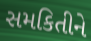
સમકિતીને